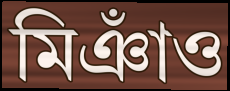
মিঞাঁও